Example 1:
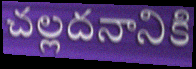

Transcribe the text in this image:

చల్లదనానికి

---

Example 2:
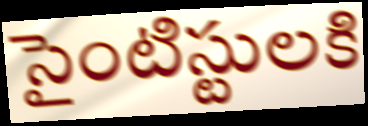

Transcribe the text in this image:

సైంటిస్టులకి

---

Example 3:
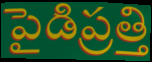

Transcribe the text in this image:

పైడిప్రత్తి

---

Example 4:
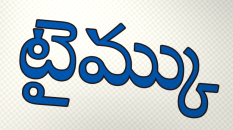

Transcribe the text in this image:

టైమ్కు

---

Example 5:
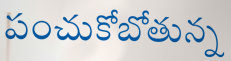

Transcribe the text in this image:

పంచుకోబోతున్న